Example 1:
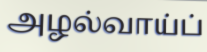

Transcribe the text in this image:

அழல்வாய்ப்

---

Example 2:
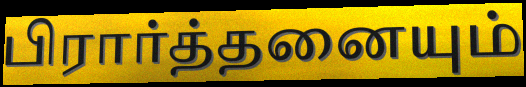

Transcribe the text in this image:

பிரார்த்தனையும்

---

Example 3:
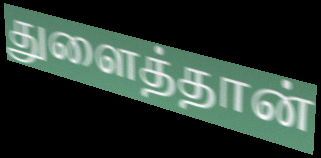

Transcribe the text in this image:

துளைத்தான்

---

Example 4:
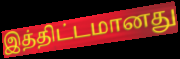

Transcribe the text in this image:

இத்திட்டமானது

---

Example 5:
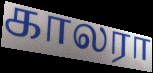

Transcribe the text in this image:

காலரா